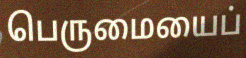
பெருமையைப்